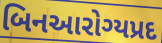
બિનઆરોગ્યપ્રદ